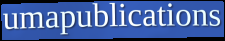
umapublications